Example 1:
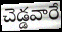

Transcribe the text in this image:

చెడ్డవారే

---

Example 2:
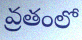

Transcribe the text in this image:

వ్రతంలో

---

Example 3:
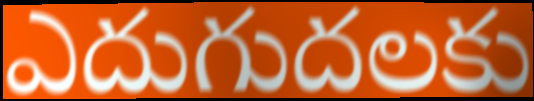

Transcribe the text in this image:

ఎదుగుదలకు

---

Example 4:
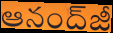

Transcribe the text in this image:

ఆనంద్‌జీ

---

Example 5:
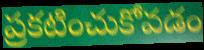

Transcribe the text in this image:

ప్రకటించుకోవడం